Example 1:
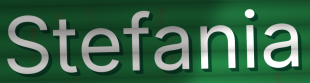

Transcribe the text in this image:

Stefania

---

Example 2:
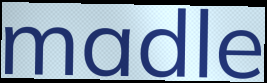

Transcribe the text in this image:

madle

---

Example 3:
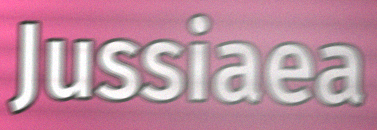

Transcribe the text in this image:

Jussiaea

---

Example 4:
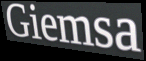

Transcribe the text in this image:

Giemsa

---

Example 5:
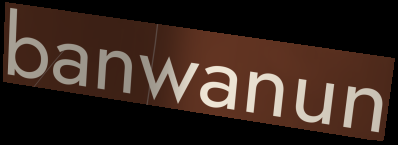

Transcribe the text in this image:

banwanun